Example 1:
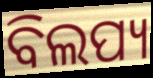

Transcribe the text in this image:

ବିଲପ୍ୟ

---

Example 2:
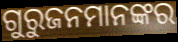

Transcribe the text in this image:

ଗୁରୁଜନମାନଙ୍କର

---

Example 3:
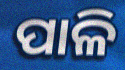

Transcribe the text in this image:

ପାଳି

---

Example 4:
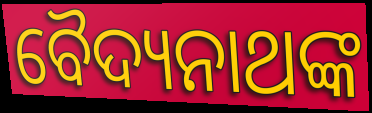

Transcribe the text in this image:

ବୈଦ୍ୟନାଥଙ୍କ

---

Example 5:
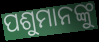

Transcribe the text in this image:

ପଶୁମାନଙ୍କୁ